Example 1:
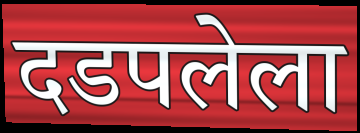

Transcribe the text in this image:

दडपलेला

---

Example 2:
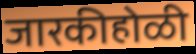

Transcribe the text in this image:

जारकीहोळी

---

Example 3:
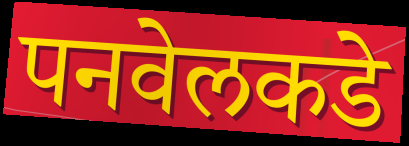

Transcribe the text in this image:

पनवेलकडे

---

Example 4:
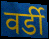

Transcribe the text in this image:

वर्डी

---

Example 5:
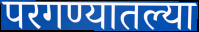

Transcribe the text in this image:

परगण्यातल्या